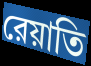
রেয়াতি